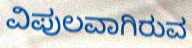
ವಿಪುಲವಾಗಿರುವ